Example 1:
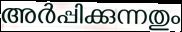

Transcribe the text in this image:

അർപ്പിക്കുന്നതും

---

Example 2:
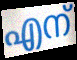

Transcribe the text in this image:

എന്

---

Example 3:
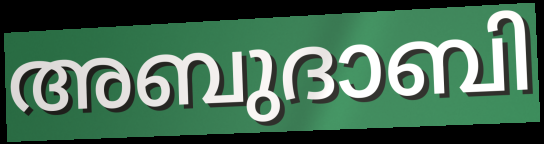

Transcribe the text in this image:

അബുദാബി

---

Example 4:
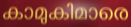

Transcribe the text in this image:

കാമുകിമാരെ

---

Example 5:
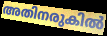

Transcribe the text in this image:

അതിനരുകിൽ